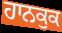
ਹਾਨਕੁਕ